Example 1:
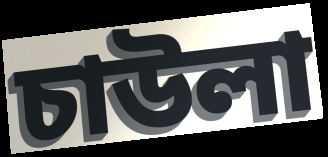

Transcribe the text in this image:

চাউলা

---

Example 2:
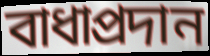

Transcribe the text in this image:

বাধাপ্রদান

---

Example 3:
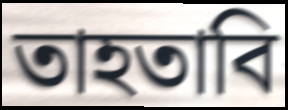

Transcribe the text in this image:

তাহতাবি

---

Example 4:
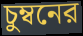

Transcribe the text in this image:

চুম্বনের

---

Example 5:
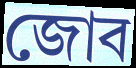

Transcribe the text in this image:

জোব